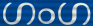
ഗംഗ